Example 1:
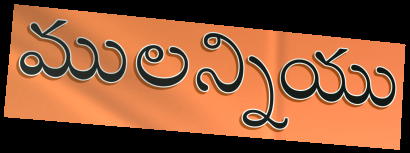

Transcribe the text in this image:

ములన్నియు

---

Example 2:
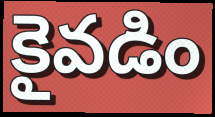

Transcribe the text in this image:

కైవడిం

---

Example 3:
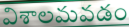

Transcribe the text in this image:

విశాలమవడం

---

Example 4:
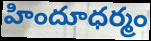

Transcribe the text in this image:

హిందూధర్మం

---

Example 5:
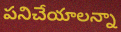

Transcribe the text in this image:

పనిచేయాలన్నా